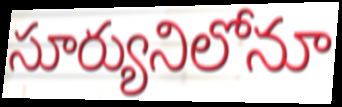
సూర్యునిలోనూ